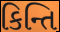
કિન્તિ